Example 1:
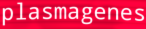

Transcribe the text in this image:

plasmagenes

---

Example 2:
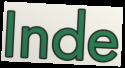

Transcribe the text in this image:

Inde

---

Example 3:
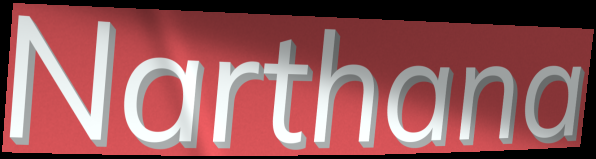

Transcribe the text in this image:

Narthana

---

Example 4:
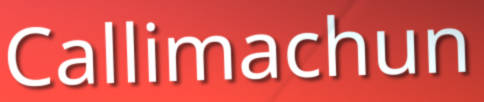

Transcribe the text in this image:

Callimachun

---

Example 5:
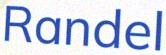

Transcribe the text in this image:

Randel